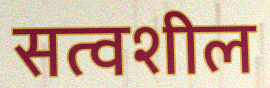
सत्वशील